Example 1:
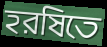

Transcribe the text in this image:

হরষিতে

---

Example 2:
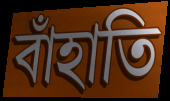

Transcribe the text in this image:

বাঁহাতি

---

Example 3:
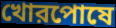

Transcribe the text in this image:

খোরপোষে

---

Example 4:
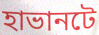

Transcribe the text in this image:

হাভানটে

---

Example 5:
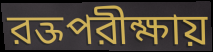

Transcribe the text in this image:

রক্তপরীক্ষায়